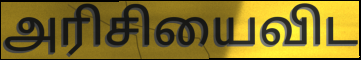
அரிசியைவிட